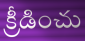
క్రీడించు